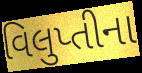
વિલુપ્તીના